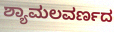
ಶ್ಯಾಮಲವರ್ಣದ